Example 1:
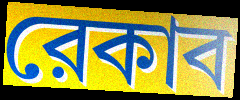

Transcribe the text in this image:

রেকাব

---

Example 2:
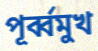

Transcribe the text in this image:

পূর্ব্বমুখ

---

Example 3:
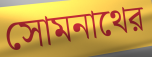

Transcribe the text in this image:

সোমনাথের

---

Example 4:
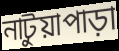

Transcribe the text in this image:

নাটুয়াপাড়া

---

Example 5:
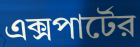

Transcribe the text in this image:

এক্সপার্টের